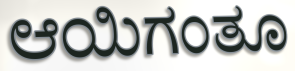
ಆಯಿಗಂತೂ